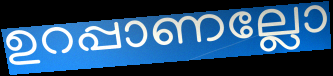
ഉറപ്പാണല്ലോ